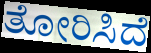
ತೋರಿಸಿದೆ